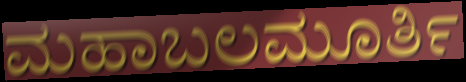
ಮಹಾಬಲಮೂರ್ತಿ